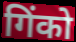
गिंको